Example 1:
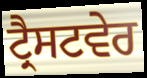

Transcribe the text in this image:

ਟ੍ਰੈਸਟਵੇਰ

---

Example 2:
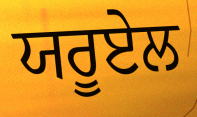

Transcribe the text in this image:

ਯਰੂਏਲ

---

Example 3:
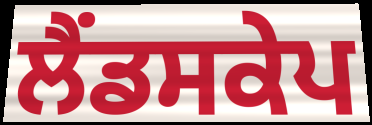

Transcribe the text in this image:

ਲੈਂਡਸਕੇਪ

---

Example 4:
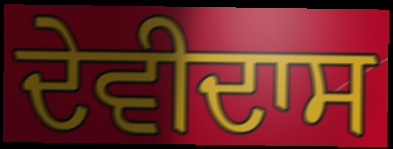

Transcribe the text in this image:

ਦੇਵੀਦਾਸ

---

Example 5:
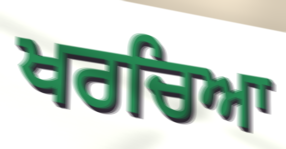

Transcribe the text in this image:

ਖਰਚਿਆ